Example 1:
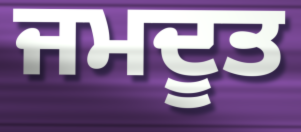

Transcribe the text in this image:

ਜਮਦੂਤ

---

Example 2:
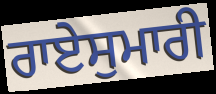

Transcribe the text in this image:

ਰਾਏਸੁਮਾਰੀ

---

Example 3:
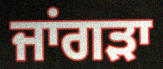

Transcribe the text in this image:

ਜਾਂਗੜਾ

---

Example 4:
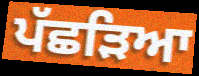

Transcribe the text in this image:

ਪੱਛੜਿਆ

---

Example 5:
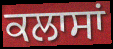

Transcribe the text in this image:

ਕਲਾਸਾਂ